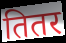
तितर